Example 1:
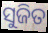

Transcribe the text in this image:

ସୁଜିତ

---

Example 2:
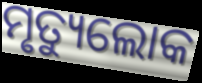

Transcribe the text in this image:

ମୃତ୍ୟୁଲୋକ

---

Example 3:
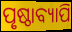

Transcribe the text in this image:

ପୃଷ୍ଠାବ୍ୟାପି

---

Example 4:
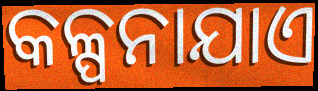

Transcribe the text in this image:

କଳ୍ପନାଯାଏ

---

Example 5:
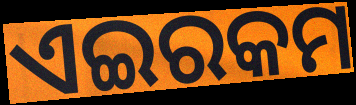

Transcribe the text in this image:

ଏଇରକମ